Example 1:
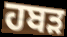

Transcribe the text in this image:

ਹਬੜ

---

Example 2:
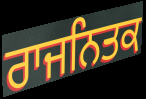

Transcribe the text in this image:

ਰਾਜਨਿਤਕ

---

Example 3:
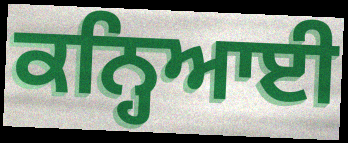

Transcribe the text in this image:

ਕਨ੍ਹਿਆਈ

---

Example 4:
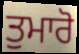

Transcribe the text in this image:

ਤੁਮਾਰੋ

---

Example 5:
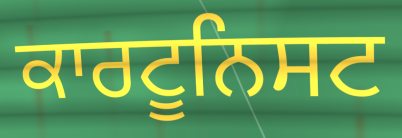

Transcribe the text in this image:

ਕਾਰਟੂਨਿਸਟ